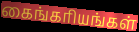
கைங்கரியங்கள்